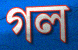
গল